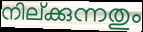
നില്ക്കുന്നതും